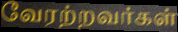
வேரற்றவர்கள்